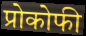
प्रोकोफी